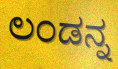
ಲಂಡನ್ನ